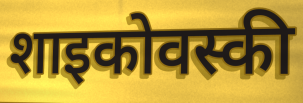
शाइकोवस्की